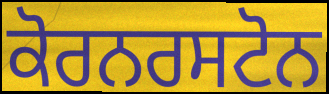
ਕੋਰਨਰਸਟੋਨ